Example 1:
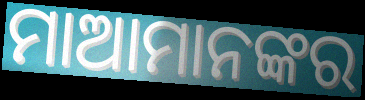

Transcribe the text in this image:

ମାଆମାନଙ୍କର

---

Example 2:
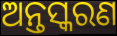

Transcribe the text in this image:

ଅନ୍ତସ୍କରଣ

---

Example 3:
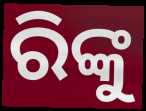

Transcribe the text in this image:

ରିଙ୍କୁ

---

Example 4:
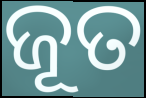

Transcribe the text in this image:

ଜୂତ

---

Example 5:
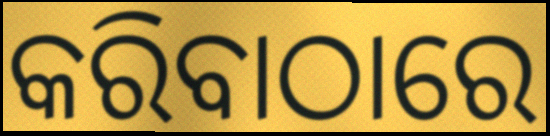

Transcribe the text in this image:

କରିବାଠାରେ